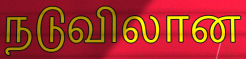
நடுவிலான